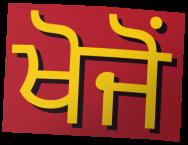
ਖੋਜੋਂ